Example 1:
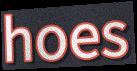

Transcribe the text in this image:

hoes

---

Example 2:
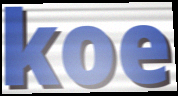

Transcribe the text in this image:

koe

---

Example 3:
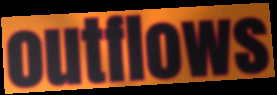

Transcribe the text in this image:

outflows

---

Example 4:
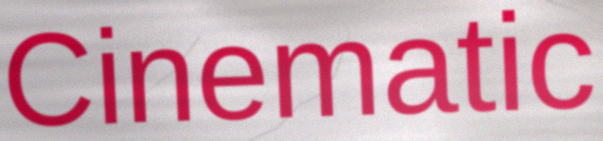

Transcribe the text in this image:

Cinematic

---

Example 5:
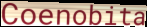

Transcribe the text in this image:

Coenobita